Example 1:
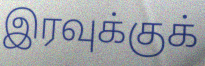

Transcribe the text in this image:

இரவுக்குக்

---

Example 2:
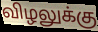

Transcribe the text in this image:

விழலுக்கு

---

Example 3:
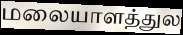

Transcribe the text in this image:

மலையாளத்துல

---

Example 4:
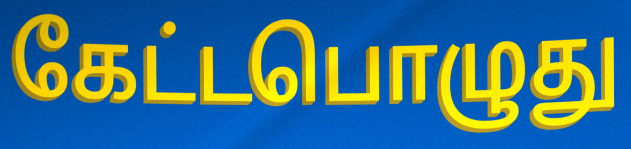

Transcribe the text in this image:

கேட்டபொழுது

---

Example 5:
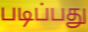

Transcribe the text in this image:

படிப்பது